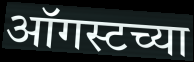
ऑगस्टच्या